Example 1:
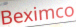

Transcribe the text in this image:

Beximco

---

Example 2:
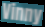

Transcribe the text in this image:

Vinny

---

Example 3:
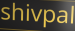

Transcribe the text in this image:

shivpal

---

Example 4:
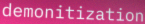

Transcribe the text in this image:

demonitization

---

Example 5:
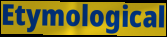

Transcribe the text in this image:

Etymological